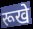
रूखे